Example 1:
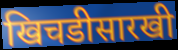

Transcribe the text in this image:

खिचडीसारखी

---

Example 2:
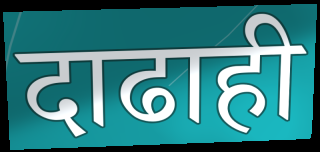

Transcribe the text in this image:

दाढाही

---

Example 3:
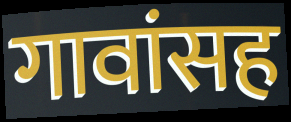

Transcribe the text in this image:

गावांसह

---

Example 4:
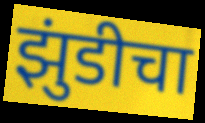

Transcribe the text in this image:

झुंडीचा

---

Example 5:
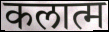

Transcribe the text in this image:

कलात्म